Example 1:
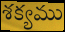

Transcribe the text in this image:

శక్యము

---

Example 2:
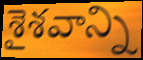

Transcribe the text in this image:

శైశవాన్ని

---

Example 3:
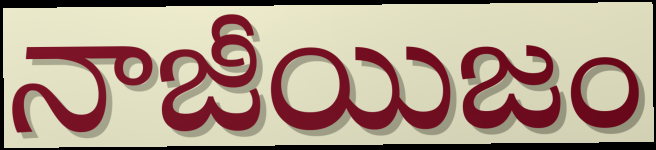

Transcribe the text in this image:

నాజీయిజం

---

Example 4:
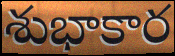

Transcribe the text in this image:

శుభాకార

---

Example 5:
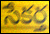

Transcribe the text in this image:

సేకర్త